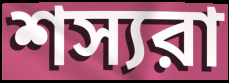
শস্যরা